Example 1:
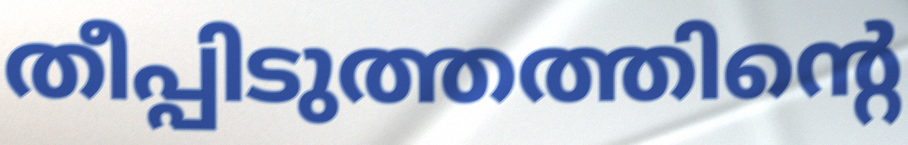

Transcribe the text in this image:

തീപ്പിടുത്തത്തിന്റെ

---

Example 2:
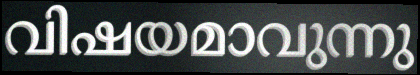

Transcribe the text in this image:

വിഷയമാവുന്നു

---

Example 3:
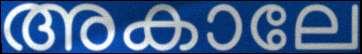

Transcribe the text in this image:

അകാലേ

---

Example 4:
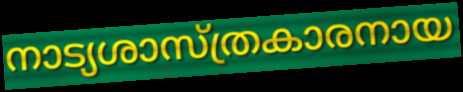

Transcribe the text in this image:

നാട്യശാസ്ത്രകാരനായ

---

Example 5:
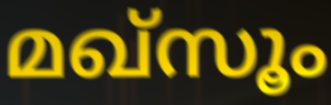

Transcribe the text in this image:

മഖ്സൂം